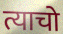
त्याचो